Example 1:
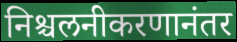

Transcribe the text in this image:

निश्चलनीकरणानंतर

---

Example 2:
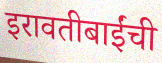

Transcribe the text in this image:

इरावतीबाईंची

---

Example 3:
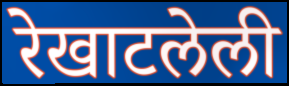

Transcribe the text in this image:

रेखाटलेली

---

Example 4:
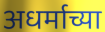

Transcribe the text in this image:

अधर्माच्या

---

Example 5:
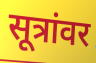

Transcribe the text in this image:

सूत्रांवर